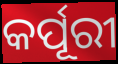
କର୍ପୂରୀ